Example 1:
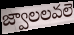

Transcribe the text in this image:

జ్వాలలవలె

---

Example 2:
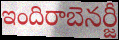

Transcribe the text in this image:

ఇందిరాబెనర్జీ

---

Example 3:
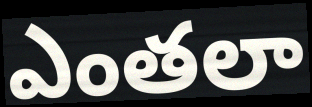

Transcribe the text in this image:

ఎంతలా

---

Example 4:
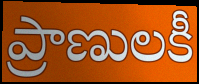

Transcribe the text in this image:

ప్రాణులకీ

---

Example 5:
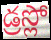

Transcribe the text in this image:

డ్రస్లో